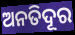
ଅନତିଦୂର